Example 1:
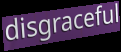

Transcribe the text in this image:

disgraceful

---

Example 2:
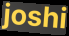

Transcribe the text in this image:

joshi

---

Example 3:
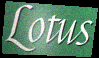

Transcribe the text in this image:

Lotus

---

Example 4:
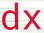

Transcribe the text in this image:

dx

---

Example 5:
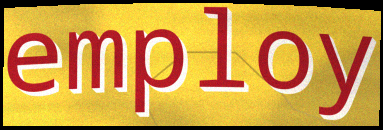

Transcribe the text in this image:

employ